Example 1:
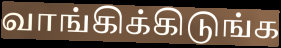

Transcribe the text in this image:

வாங்கிக்கிடுங்க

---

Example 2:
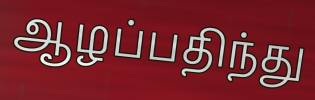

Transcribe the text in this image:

ஆழப்பதிந்து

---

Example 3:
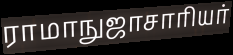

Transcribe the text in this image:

ராமாநுஜாசாரியர்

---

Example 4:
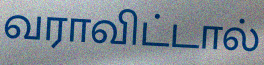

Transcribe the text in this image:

வராவிட்டால்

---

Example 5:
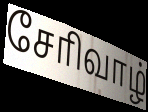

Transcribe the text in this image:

சேரிவாழ்